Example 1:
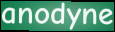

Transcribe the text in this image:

anodyne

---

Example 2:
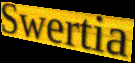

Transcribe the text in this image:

Swertia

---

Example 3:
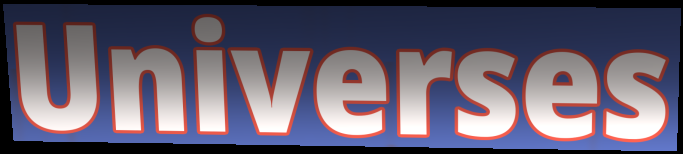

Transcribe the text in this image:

Universes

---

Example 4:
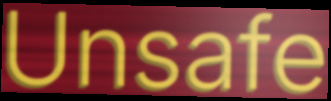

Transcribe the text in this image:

Unsafe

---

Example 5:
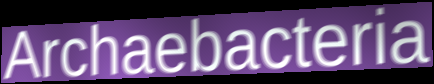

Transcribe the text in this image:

Archaebacteria